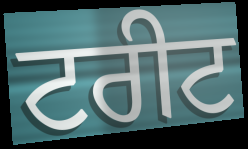
ਟਰੀਟ